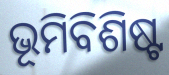
ଭୂମିବିଶିଷ୍ଟ